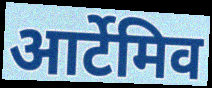
आर्टेमिव